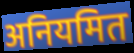
अनियमित